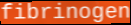
fibrinogen